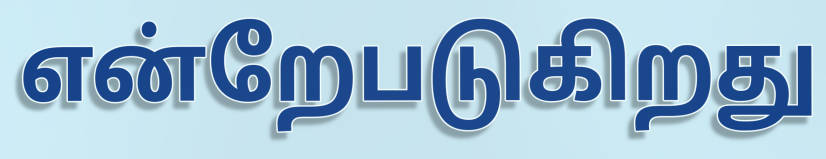
என்றேபடுகிறது